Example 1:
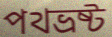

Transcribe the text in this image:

পথভ্রষ্ট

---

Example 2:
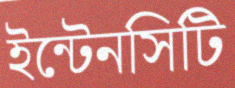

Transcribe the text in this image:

ইন্টেনসিটি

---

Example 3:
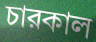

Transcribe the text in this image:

চারকাল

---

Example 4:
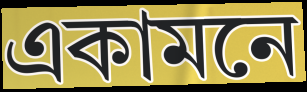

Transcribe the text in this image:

একামনে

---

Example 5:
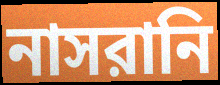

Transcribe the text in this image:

নাসরানি